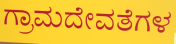
ಗ್ರಾಮದೇವತೆಗಳ